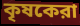
কৃষকেরা